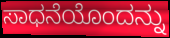
ಸಾಧನೆಯೊಂದನ್ನು